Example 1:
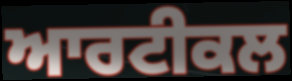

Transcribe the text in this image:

ਆਰਟੀਕਲ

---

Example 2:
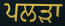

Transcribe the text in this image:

ਪਲੜਾ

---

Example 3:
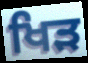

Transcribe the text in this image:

ਖਿੜ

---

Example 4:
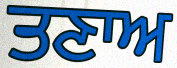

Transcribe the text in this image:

ਤਣਾਅ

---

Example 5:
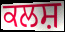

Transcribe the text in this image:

ਕਲਸ਼